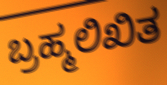
ಬ್ರಹ್ಮಲಿಖಿತ